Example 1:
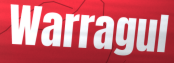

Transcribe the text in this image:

Warragul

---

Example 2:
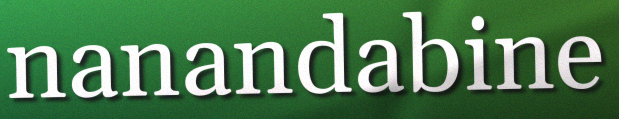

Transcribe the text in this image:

nanandabine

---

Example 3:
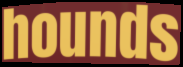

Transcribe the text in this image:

hounds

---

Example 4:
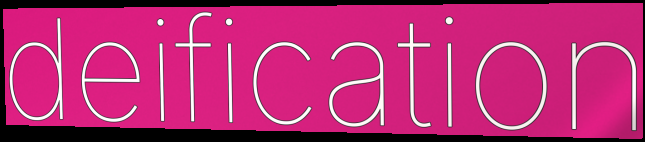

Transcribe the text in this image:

deification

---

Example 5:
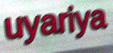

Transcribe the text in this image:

uyariya